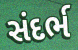
સંદર્ભ